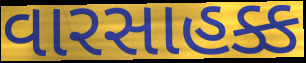
વારસાહક્ક